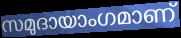
സമുദായാംഗമാണ്